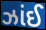
ઝાંઈ